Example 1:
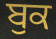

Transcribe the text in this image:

ਬੁਕ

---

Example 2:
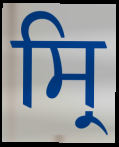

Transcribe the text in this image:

ਸ੍ਰਿ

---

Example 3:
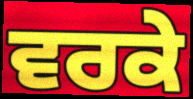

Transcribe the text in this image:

ਵਰਕੇ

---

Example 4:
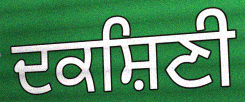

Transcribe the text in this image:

ਦਕਸ਼ਿਣੀ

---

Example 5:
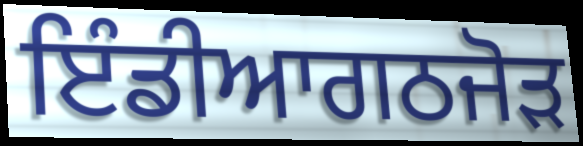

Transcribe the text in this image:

ਇੰਡੀਆਗਠਜੋੜ